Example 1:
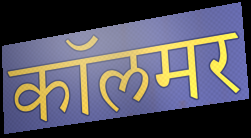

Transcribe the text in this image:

कॉलमर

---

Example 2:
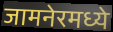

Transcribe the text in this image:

जामनेरमध्ये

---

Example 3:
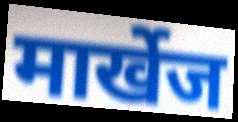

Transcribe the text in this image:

मार्खेज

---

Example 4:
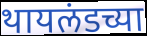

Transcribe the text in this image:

थायलंडच्या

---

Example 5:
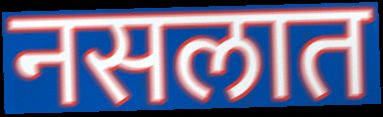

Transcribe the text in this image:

नसलात